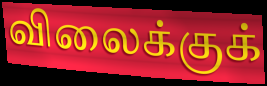
விலைக்குக்